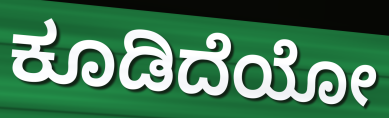
ಕೂಡಿದೆಯೋ